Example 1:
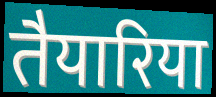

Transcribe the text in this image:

तैयारिया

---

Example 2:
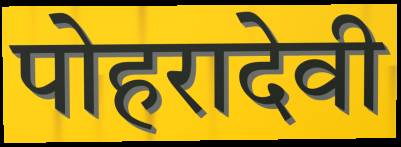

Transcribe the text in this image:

पोहरादेवी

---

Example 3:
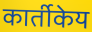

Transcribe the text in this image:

कार्तीकेय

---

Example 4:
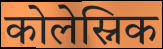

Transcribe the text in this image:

कोलेस्निक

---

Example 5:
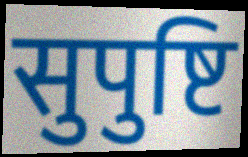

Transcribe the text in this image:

सुपुष्टि